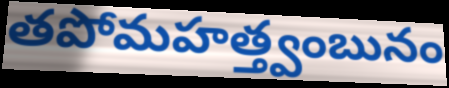
తపోమహత్త్వంబునం